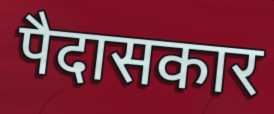
पैदासकार